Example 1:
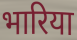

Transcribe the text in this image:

भारिया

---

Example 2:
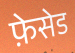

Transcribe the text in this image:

फ़ेसेड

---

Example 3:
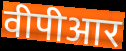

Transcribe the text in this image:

वीपीआर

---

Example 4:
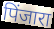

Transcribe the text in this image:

पिंजारा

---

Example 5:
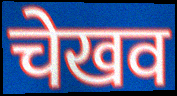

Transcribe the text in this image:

चेखव